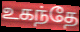
உகந்தே